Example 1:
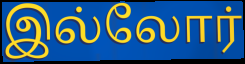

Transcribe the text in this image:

இல்லோர்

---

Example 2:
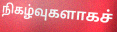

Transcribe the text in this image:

நிகழ்வுகளாகச்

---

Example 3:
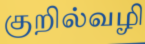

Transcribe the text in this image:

குறில்வழி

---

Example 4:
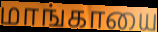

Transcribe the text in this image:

மாங்காயை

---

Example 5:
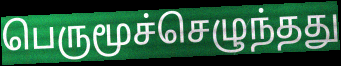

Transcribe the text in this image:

பெருமூச்செழுந்தது